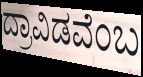
ದ್ರಾವಿಡವೆಂಬ